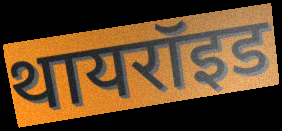
थायरॉइड